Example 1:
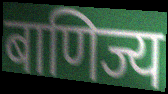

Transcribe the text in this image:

बाणिज्य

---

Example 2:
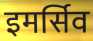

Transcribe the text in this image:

इमर्सिव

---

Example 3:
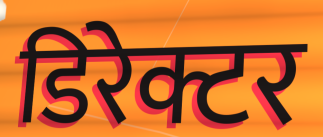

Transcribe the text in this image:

डिरेक्टर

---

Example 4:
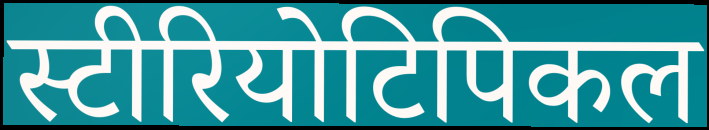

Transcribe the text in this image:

स्टीरियोटिपिकल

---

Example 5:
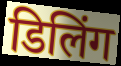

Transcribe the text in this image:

डिलिंग